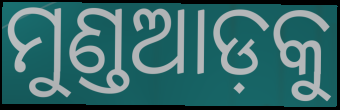
ମୁଣ୍ଡଆଡ଼କୁ